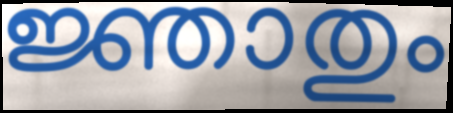
ജ്ഞാതും